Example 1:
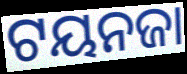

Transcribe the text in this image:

ଟୟନଜା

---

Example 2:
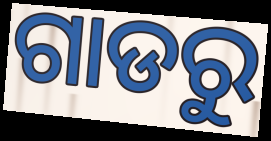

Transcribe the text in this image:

ଗାଡରୁ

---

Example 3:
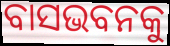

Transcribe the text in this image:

ବାସଭବନକୁ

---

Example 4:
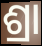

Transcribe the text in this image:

ଶ୍ରା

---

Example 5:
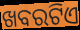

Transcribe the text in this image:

ଖବରଟିଏ